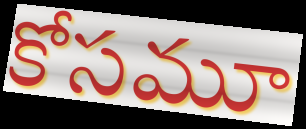
కోసమూ